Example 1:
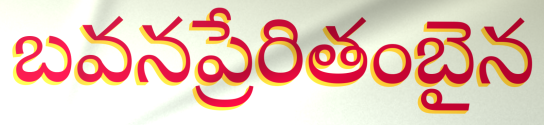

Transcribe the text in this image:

బవనప్రేరితంబైన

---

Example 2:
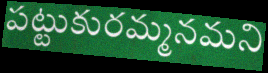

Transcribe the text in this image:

పట్టుకురమ్మనమని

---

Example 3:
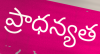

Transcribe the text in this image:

ప్రాధన్యత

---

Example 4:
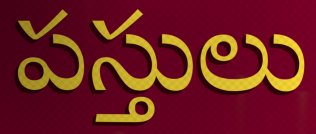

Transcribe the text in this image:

పస్తులు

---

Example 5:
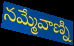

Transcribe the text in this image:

నమ్మేవాణ్ని